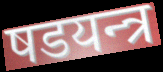
षडयन्त्र